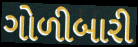
ગોળીબારી